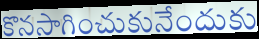
కొనసాగించుకునేందుకు